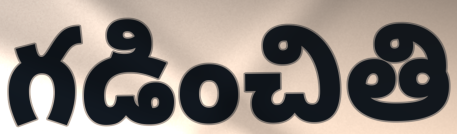
గడించితి